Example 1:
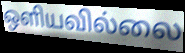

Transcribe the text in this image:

ஒளியவில்லை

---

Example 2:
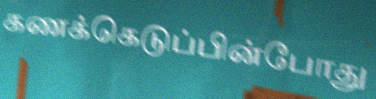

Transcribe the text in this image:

கணக்கெடுப்பின்போது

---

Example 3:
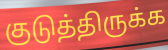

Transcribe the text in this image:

குடுத்திருக்க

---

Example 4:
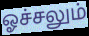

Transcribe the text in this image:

ஓச்சலும்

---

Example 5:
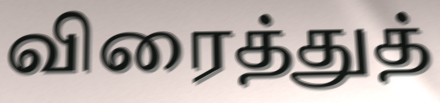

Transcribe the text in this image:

விரைத்துத்